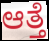
ಆತ್ತೆ